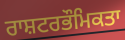
ਰਾਸ਼ਟਰਭੌਮਿਕਤਾ